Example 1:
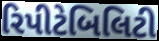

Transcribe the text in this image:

રિપીટેબિલિટી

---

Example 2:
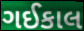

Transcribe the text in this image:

ગઈકાલ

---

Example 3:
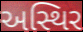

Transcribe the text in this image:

અસ્થિર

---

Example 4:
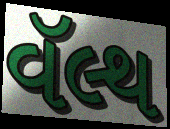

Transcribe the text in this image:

વૅલ્થ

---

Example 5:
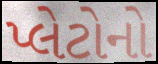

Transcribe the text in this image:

પ્લેટોનો